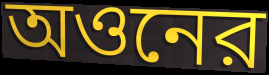
অওনের